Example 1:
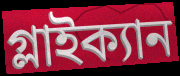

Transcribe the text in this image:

গ্লাইক্যান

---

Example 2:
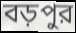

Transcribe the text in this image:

বড়পুর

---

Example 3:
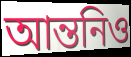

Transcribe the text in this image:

আন্তনিও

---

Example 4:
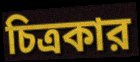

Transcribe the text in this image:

চিত্রকার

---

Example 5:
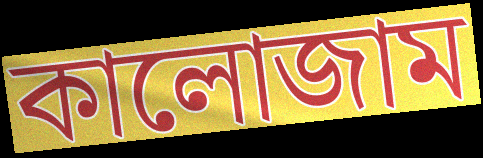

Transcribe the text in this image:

কালোজাম